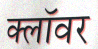
क्लॉवर